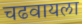
चढवायला